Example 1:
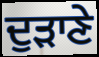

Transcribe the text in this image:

ਦੁੜਾਣੇ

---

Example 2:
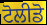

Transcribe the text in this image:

ਟੋਲੀਡੋ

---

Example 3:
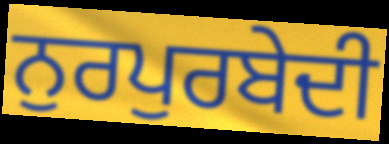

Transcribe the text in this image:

ਨੁਰਪੁਰਬੇਦੀ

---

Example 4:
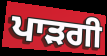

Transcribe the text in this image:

ਪਾੜਗੀ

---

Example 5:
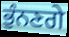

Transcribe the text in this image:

ਭੁੰਨਣਗੇ